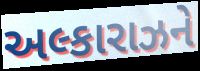
અલ્કારાઝને